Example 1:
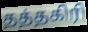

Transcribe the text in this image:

தத்தகிரி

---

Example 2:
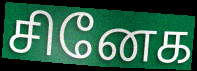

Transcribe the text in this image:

சினேக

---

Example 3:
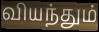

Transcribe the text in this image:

வியந்தும்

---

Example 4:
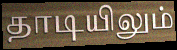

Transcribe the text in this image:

தாடியிலும்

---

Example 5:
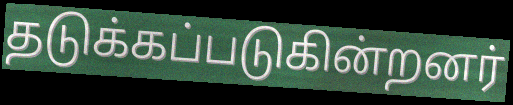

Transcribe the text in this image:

தடுக்கப்படுகின்றனர்